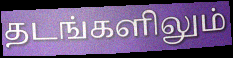
தடங்களிலும்